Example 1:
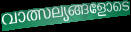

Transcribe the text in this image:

വാത്സല്യങ്ങളോടെ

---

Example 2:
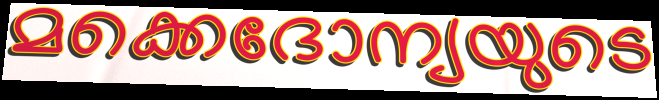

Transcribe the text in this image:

മക്കെദോന്യയുടെ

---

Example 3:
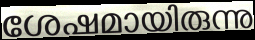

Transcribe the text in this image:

ശേഷമായിരുന്നു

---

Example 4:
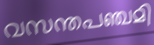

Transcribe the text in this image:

വസന്തപഞ്ചമി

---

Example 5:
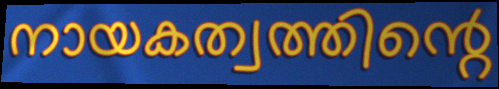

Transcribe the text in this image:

നായകത്വത്തിന്റെ